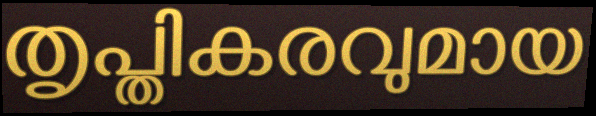
തൃപ്തികരവുമായ